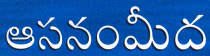
ఆసనంమీద